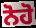
ਨੋਹੋ